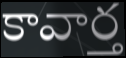
కావార్త